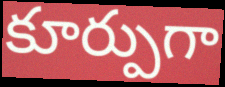
కూర్పుగా